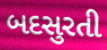
બદસુરતી